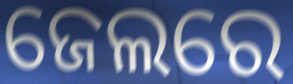
ଜେଲରେ